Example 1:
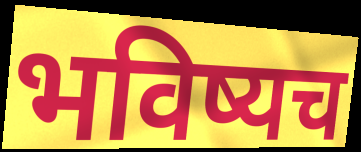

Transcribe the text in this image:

भविष्यच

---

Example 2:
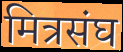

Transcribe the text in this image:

मित्रसंघ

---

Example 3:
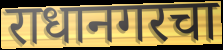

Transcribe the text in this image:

राधानगरचा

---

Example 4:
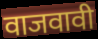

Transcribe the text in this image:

वाजवावी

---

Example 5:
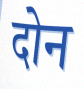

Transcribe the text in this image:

दोन